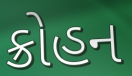
ક્રોહન